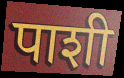
पाशी